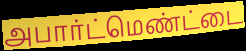
அபார்ட்மெண்ட்டை